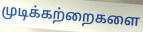
முடிக்கற்றைகளை